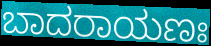
ಬಾದರಾಯಣಃ